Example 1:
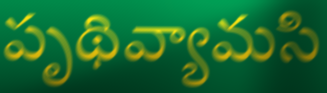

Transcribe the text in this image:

పృథివ్యామసి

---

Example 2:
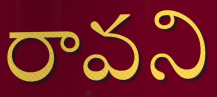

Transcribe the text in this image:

రావని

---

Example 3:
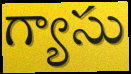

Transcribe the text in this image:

గ్యాసు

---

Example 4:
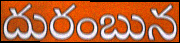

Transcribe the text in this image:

దురంబున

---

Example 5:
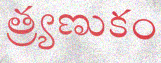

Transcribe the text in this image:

త్ర్యణుకం